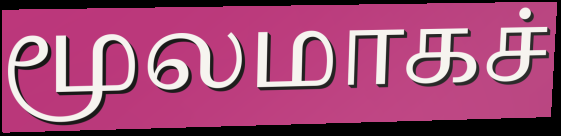
மூலமாகச்